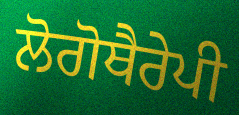
ਲੋਗੋਥੈਰੇਪੀ